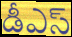
డీఎస్